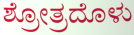
ಶ್ರೋತ್ರದೊಳು